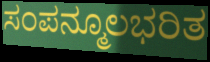
ಸಂಪನ್ಮೂಲಭರಿತ